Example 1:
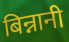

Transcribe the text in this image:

बिन्नानी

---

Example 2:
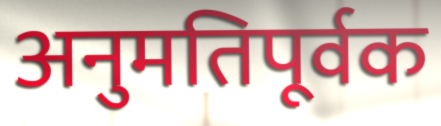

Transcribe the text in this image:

अनुमतिपूर्वक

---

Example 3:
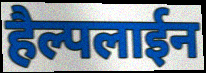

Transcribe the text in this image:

हैल्पलाईन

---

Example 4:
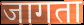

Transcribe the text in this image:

जागता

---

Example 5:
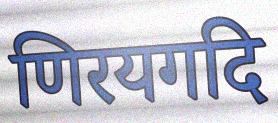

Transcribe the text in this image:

णिरयगदि